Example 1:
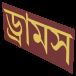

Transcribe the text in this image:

ড্রামস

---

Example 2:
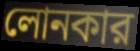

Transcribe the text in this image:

লোনকার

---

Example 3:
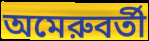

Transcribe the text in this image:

অমেরুবর্তী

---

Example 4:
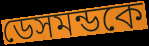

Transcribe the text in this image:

ডেসমন্ডকে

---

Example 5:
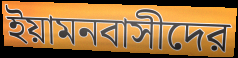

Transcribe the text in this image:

ইয়ামনবাসীদের